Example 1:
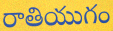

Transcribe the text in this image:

రాతియుగం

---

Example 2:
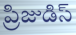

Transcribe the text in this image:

ప్రిజుడిస్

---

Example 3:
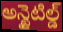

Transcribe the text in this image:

అన్టైటిల్డ్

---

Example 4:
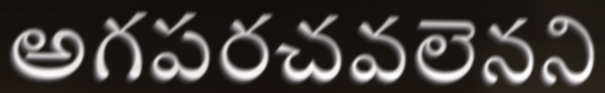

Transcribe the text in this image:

అగపరచవలెనని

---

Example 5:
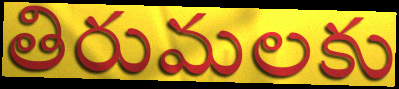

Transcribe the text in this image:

తిరుమలకు